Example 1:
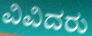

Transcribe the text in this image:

ವಿವಿದರು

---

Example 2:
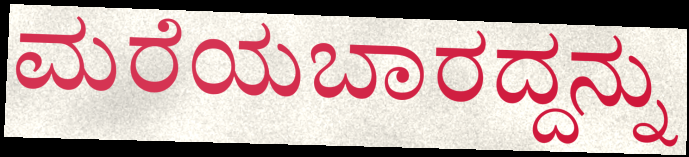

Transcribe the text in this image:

ಮರೆಯಬಾರದ್ದನ್ನು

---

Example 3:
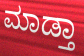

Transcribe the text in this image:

ಮಾಡ್ತಾ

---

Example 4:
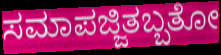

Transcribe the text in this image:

ಸಮಾಪಜ್ಜಿತಬ್ಬತೋ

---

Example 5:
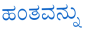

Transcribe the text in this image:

ಹಂತವನ್ನು